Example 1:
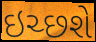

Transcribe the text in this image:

ઇચ્છશે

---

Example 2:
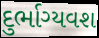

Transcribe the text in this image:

દુર્ભાગ્યવશ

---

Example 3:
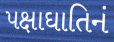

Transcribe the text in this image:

પક્ષાઘાતિનં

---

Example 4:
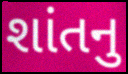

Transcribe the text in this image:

શાંતનુ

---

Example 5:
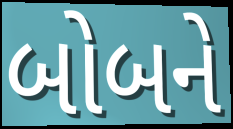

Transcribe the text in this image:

બોબને